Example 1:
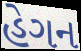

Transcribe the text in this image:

હેગન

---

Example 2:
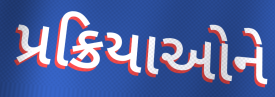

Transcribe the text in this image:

પ્રક્રિયાઓને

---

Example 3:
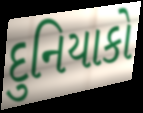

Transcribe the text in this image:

દુનિયાકો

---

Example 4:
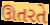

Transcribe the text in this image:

ઊતરતે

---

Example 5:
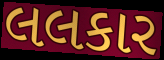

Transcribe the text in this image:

લલકાર